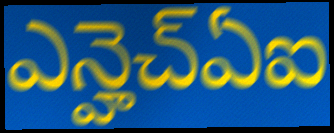
ఎన్హెచ్ఏఐ